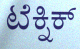
ಟೆಕ್ನಿಕ್